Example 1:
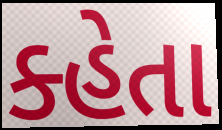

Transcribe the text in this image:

ક્હેતા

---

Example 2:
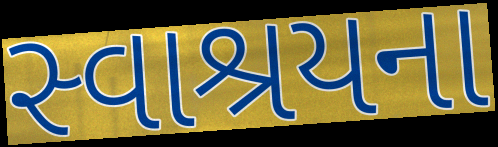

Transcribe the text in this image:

સ્વાશ્રયના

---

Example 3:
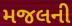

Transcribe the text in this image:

મજલની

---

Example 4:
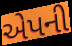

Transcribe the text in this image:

એપની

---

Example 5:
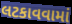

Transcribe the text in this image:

લટકાવવામાં